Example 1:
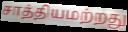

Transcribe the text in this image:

சாத்தியமற்றது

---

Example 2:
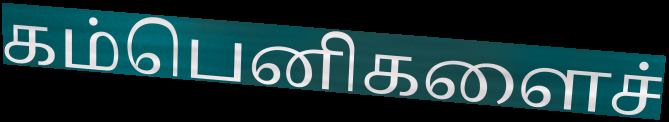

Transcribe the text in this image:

கம்பெனிகளைச்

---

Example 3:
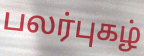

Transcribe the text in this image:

பலர்புகழ்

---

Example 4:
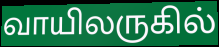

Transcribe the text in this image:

வாயிலருகில்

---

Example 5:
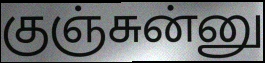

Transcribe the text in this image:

குஞ்சுன்னு